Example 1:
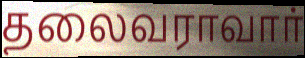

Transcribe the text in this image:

தலைவராவார்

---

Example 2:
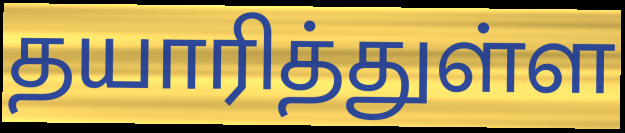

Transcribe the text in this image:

தயாரித்துள்ள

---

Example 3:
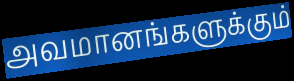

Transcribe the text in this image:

அவமானங்களுக்கும்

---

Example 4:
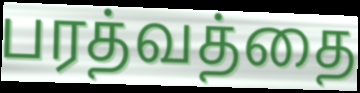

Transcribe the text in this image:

பரத்வத்தை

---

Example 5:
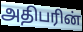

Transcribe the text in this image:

அதிபரின்